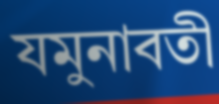
যমুনাবতী